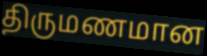
திருமணமான